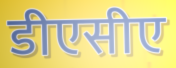
डीएसीए